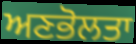
ਅਣਭੋਲਤਾ